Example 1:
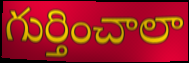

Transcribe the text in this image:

గుర్తించాలా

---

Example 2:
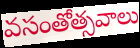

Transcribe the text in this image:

వసంతోత్సవాలు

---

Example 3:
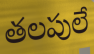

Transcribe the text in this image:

తలపులే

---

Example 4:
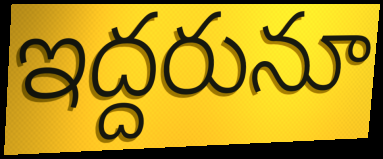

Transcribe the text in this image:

ఇద్దరునూ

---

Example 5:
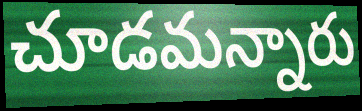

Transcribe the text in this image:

చూడమన్నారు